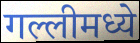
गल्लीमध्ये